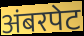
अंबरपेट